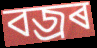
বজ্ৰৰ